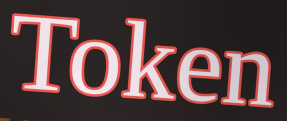
Token